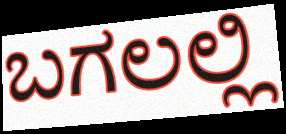
ಬಗಲಲ್ಲಿ